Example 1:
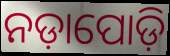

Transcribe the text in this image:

ନଡ଼ାପୋଡ଼ି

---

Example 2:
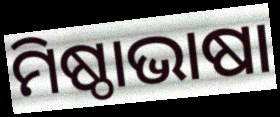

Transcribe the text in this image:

ମିଷ୍ଠାଭାଷା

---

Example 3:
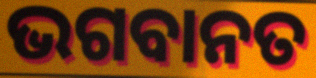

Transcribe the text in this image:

ଭଗବାନତ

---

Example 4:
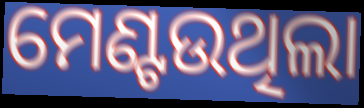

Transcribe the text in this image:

ମେଣ୍ଟଉଥିଲା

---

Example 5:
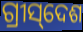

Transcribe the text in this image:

ଗ୍ରୀସ୍‌ଦେଶ